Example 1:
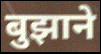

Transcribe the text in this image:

बुझाने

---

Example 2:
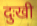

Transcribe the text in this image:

दुःखी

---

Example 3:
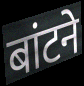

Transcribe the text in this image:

बांटने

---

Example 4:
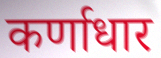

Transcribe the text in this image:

कर्णाधार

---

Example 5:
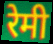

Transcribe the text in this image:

रेमी